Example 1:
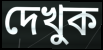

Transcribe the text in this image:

দেখুক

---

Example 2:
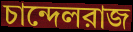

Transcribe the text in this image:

চান্দেলরাজ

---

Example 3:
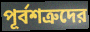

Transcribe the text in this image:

পূর্বশত্রুদের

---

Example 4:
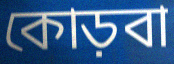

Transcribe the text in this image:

কোড়বা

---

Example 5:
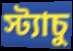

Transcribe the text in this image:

স্ট্যাচু